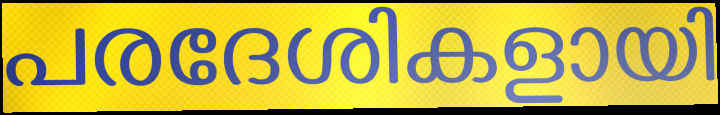
പരദേശികളായി